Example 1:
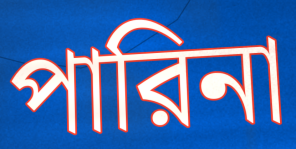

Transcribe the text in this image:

পারিনা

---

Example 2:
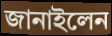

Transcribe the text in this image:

জানাইলেন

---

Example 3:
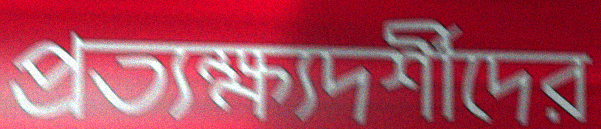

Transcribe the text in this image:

প্রত্যক্ষ্যদর্শীদের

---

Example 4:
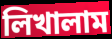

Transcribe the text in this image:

লিখালাম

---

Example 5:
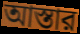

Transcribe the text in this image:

আস্তার